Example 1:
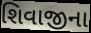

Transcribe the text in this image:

શિવાજીના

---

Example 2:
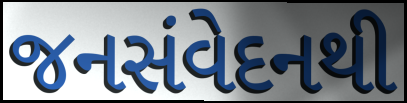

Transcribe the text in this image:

જનસંવેદનથી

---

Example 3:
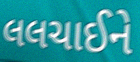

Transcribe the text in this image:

લલચાઈને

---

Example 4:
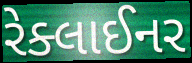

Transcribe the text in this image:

રેક્લાઈનર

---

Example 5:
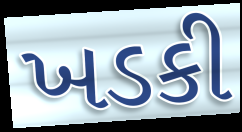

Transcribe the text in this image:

ખડકી